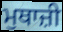
ਮੁਥਾਜ਼ੀ